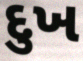
દુખ